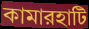
কামারহাটি